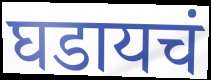
घडायचं